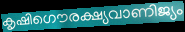
കൃഷിഗൌരക്ഷ്യവാണിജ്യം